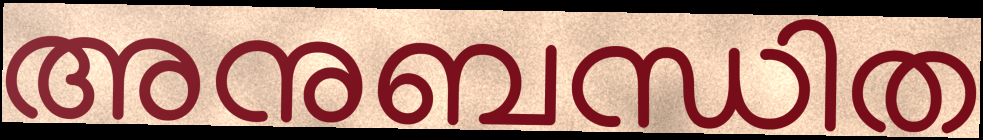
അനുബന്ധിത